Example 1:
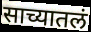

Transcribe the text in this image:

साच्यातलं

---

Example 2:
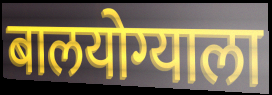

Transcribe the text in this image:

बालयोग्याला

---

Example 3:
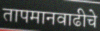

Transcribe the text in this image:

तापमानवाढीचे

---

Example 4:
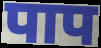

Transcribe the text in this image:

पाप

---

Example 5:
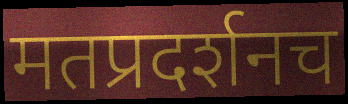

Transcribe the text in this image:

मतप्रदर्शनच